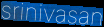
srinivasan